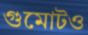
গুমোটও